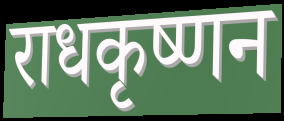
राधकृष्णन